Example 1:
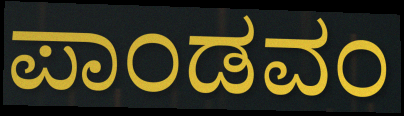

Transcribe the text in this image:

ಪಾಂಡವಂ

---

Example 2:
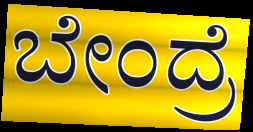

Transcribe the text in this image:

ಬೇಂದ್ರೆ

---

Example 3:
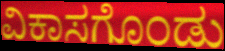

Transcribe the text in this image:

ವಿಕಾಸಗೊಂಡು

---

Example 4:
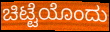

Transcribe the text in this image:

ಚಿಟ್ಟೆಯೊಂದು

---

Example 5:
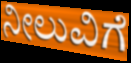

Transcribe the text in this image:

ನೀಲುವಿಗೆ